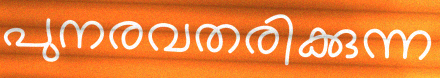
പുനരവതരിക്കുന്ന